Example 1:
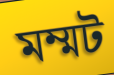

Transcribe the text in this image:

মম্মট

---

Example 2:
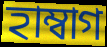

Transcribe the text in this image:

হাম্বাগ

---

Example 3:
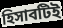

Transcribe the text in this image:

হিসাবটিই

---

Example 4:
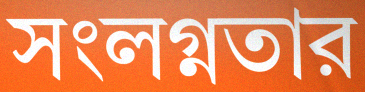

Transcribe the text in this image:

সংলগ্নতার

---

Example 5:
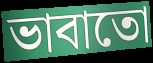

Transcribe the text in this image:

ভাবাতো